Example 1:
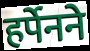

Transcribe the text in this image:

हर्पेनने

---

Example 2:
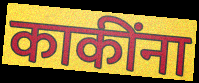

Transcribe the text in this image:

काकींना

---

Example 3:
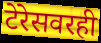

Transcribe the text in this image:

टेरेसवरही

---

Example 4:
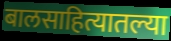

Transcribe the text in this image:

बालसाहित्यातल्या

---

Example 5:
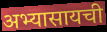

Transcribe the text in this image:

अभ्यासायची